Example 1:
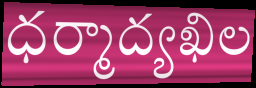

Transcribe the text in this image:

ధర్మాద్యఖిల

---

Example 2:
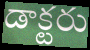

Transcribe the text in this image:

డాక్టరు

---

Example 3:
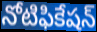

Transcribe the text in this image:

నోటిఫికేషన్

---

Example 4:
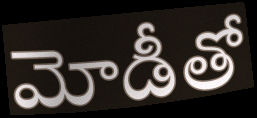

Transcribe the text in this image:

మోడీతో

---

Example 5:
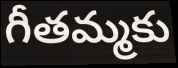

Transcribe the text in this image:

గీతమ్మకు